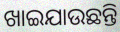
ଖାଇଯାଉଛନ୍ତି